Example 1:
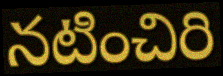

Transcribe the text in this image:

నటించిరి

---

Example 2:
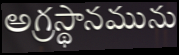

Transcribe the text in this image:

అగ్రస్థానమును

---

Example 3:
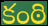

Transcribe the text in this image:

కంఠి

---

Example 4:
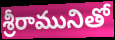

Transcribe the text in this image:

శ్రీరామునితో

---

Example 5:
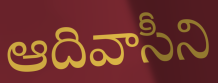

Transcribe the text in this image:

ఆదివాసీని